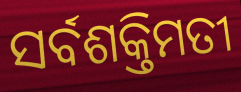
ସର୍ବଶକ୍ତିମତୀ